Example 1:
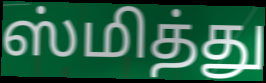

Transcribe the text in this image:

ஸ்மித்து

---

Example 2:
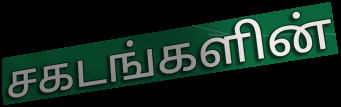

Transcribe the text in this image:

சகடங்களின்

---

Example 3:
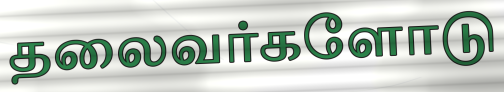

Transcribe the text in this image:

தலைவர்களோடு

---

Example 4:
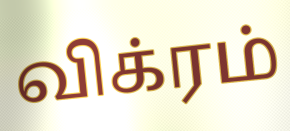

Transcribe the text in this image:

விக்ரம்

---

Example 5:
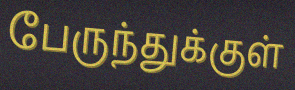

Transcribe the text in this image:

பேருந்துக்குள்